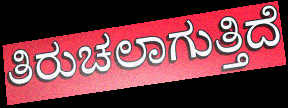
ತಿರುಚಲಾಗುತ್ತಿದೆ